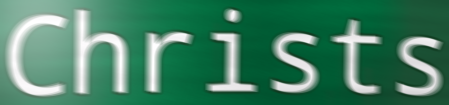
Christs